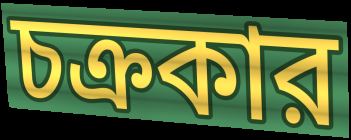
চক্রকার